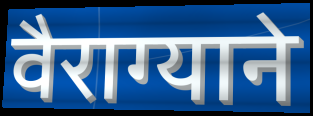
वैराग्याने